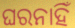
ଘରନାହିଁ